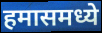
हमासमध्ये